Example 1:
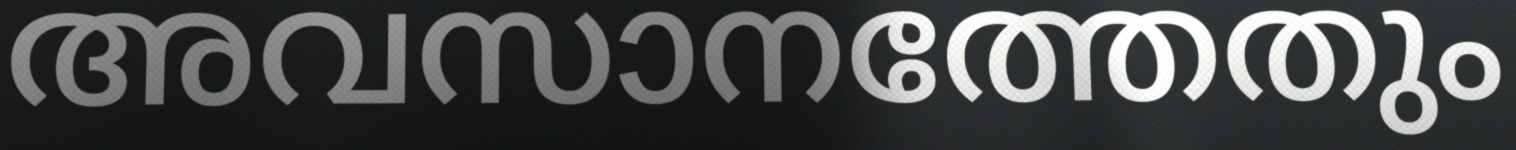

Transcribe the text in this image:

അവസാനത്തേതും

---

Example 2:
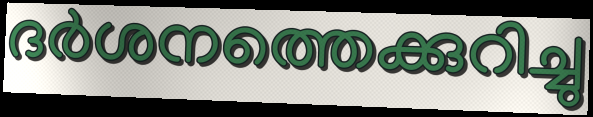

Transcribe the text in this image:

ദർശനത്തെക്കുറിച്ചു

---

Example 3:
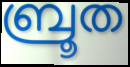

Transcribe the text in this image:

ബ്രൂത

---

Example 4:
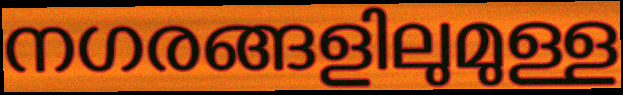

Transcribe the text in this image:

നഗരങ്ങളിലുമുള്ള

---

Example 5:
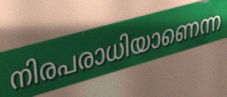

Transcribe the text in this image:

നിരപരാധിയാണെന്ന